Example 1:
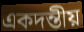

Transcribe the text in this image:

একদন্তীয়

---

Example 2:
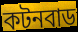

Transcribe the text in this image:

কটনবাড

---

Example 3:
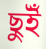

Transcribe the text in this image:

ছুইঁ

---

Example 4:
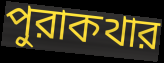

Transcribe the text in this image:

পুরাকথার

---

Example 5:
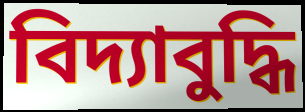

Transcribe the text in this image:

বিদ্যাবুদ্ধি